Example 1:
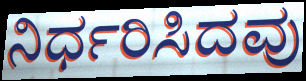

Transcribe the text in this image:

ನಿರ್ಧರಿಸಿದವು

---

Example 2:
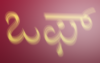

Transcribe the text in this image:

ಒಫ್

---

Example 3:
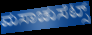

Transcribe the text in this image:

ಮಸಾಚುಸೆಟ್ಸ್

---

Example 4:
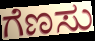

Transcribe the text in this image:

ಗೆಣಸು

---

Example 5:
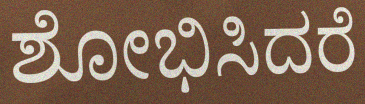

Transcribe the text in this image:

ಶೋಭಿಸಿದರೆ